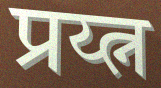
प्रय्त्न